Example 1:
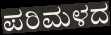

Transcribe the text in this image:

ಪರಿಮಳದ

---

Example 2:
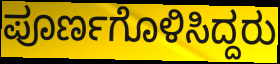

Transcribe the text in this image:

ಪೂರ್ಣಗೊಳಿಸಿದ್ದರು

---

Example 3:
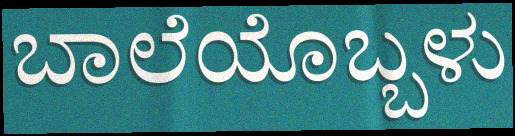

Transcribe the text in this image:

ಬಾಲೆಯೊಬ್ಬಳು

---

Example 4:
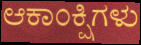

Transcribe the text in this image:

ಆಕಾಂಕ್ಷಿಗಳು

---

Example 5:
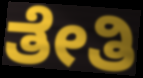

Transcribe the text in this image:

ತೇತಿ